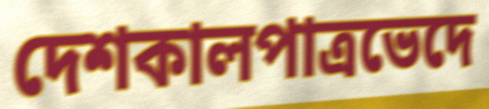
দেশকালপাত্রভেদে